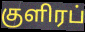
குளிரப்